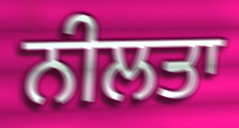
ਨੀਲਤਾ